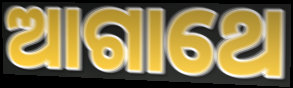
ଆଗାଥେ